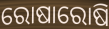
ରୋଷାରୋଷି